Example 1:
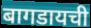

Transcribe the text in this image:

बागडायची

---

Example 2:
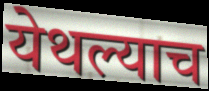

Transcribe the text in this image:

येथल्याच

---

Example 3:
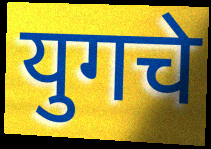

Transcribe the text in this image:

युगचे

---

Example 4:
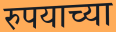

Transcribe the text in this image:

रुपयाच्या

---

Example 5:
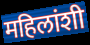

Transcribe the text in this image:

महिलांशी